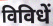
विविधें